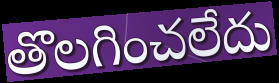
తొలగించలేదు